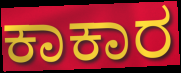
ಕಾಕಾರ